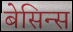
बेसिन्स